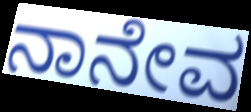
ನಾನೇವ